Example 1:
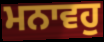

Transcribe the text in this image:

ਮਨਾਵਹੁ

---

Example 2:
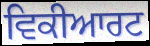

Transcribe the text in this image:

ਵਿਕੀਆਰਟ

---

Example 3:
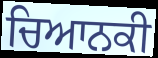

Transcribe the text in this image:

ਚਿਆਨਕੀ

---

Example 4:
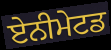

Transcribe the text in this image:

ਏਨੀਮੇਟਡ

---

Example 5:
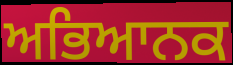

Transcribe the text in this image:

ਅਭਿਆਨਕ